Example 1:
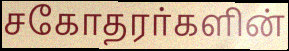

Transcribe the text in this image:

சகோதரர்களின்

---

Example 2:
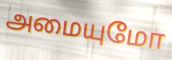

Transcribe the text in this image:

அமையுமோ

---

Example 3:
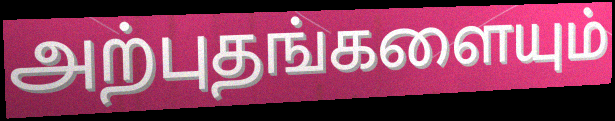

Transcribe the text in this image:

அற்புதங்களையும்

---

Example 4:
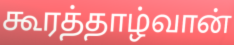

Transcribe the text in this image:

கூரத்தாழ்வான்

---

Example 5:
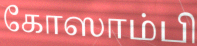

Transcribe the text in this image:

கோஸாம்பி